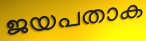
ജയപതാക